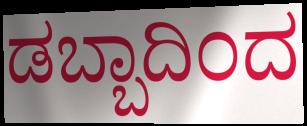
ಡಬ್ಬಾದಿಂದ